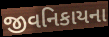
જીવનિકાયના